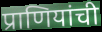
प्राणियांची